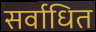
सर्वाधित